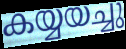
കയ്യയച്ചു